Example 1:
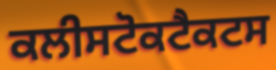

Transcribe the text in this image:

ਕਲੀਸਟੋਕਟੈਕਟਸ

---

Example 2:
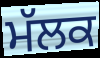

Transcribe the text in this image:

ਮੱਲਕ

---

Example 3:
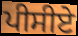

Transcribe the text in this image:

ਪੀਸੀਏ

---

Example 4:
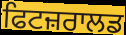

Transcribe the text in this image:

ਫਿਟਜ਼ਰਾਲਡ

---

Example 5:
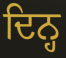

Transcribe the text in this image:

ਦਿਨ੍ਹ